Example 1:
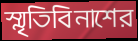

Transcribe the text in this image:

স্মৃতিবিনাশের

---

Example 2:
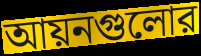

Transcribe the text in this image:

আয়নগুলোর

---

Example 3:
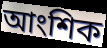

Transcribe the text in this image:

আংশিক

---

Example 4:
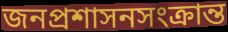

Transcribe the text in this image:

জনপ্রশাসনসংক্রান্ত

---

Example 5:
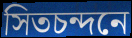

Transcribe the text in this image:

সিতচন্দনে